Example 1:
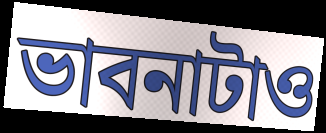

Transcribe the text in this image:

ভাবনাটাও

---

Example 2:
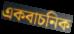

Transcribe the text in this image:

একবাচনিক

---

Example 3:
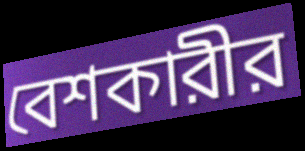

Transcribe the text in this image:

বেশকারীর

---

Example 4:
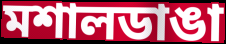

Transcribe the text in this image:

মশালডাঙা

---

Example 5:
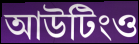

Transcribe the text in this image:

আউটিংও